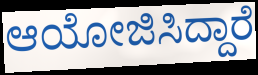
ಆಯೋಜಿಸಿದ್ದಾರೆ